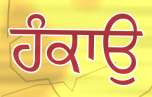
ਹੰਕਾਉ